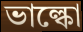
ভাল্কো